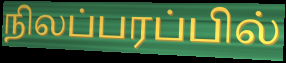
நிலப்பரப்பில்